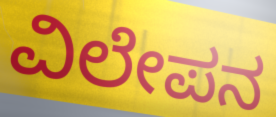
ವಿಲೇಪನ